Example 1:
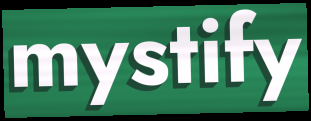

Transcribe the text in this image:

mystify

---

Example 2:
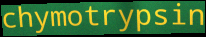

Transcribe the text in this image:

chymotrypsin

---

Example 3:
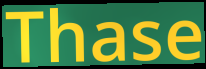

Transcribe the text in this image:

Thase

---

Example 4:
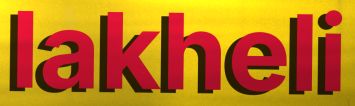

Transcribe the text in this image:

lakheli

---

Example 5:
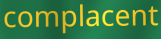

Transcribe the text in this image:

complacent